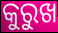
କୁରୁଖ